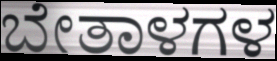
ಬೇತಾಳಗಳ